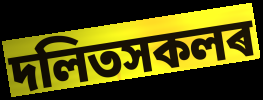
দলিতসকলৰ